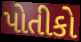
પોતીકો